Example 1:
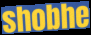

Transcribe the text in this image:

shobhe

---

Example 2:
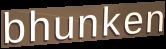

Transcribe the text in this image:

bhunken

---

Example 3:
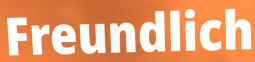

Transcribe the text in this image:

Freundlich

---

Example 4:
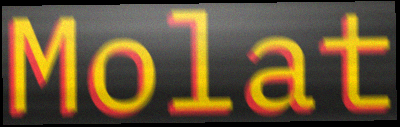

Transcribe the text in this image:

Molat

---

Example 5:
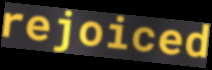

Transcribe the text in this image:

rejoiced